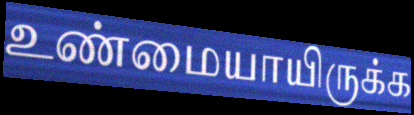
உண்மையாயிருக்க